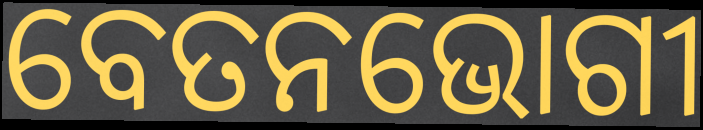
ବେତନଭୋଗୀ